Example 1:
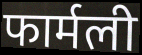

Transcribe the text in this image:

फार्मली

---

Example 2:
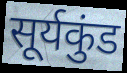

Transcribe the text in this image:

सूर्यकुंड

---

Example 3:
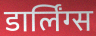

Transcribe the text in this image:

डार्लिंग्स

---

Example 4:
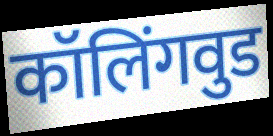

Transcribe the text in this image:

कॉलिंगवुड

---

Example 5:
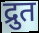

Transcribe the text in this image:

द्रुत